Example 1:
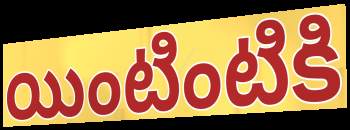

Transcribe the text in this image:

యింటింటికి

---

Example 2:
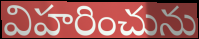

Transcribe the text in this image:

విహరించును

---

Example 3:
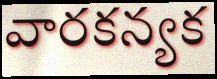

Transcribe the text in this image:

వారకన్యక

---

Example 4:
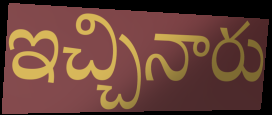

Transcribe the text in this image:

ఇచ్చినారు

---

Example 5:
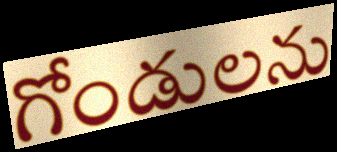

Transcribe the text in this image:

గోండులను